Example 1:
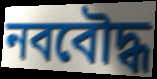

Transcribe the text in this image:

নববৌদ্ধ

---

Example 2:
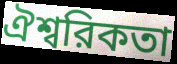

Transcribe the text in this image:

ঐশ্বরিকতা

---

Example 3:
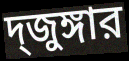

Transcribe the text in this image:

দ্জুঙ্গার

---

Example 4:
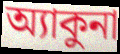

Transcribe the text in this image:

অ্যাকুনা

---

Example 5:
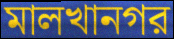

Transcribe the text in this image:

মালখানগর